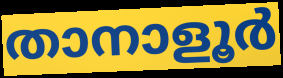
താനാളൂർ